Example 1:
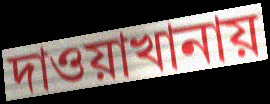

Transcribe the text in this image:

দাওয়াখানায়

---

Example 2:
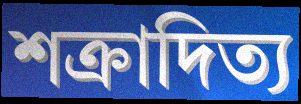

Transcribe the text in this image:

শক্রাদিত্য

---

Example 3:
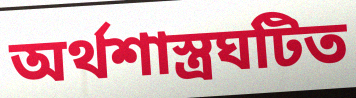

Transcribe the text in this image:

অর্থশাস্ত্রঘটিত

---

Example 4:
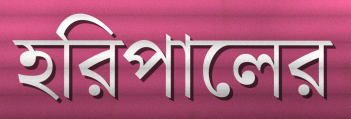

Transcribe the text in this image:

হরিপালের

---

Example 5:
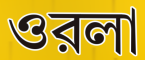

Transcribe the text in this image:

ওরলা